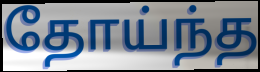
தோய்ந்த